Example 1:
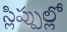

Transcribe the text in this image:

స్లిప్పుల్లో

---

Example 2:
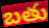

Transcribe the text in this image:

బతు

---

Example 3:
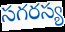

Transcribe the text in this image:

సగరస్య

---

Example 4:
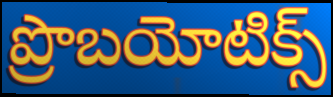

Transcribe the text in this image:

ప్రొబయోటిక్స్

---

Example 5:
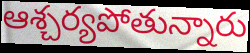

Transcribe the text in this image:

ఆశ్చర్యపోతున్నారు